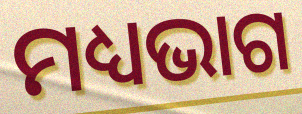
ମଧ୍ୟଭାଗ